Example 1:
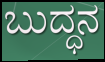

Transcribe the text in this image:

ಬುದ್ಧನ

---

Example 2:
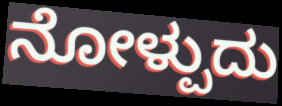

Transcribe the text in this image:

ನೋಳ್ಪುದು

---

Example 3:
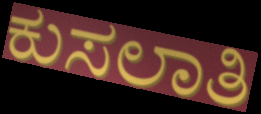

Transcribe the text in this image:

ಕುಸಲಾತಿ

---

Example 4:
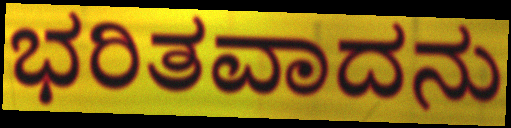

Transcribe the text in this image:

ಭರಿತವಾದನು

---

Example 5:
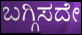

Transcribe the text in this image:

ಬಗ್ಗಿಸದೇ